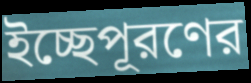
ইচ্ছেপূরণের